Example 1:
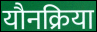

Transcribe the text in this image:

यौनक्रिया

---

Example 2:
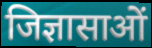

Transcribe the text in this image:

जिज्ञासाओं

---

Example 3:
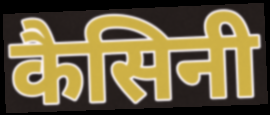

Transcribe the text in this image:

कैसिनी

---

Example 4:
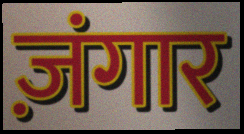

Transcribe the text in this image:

ज़ंगार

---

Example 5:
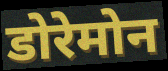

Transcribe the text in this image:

डोरेमोन